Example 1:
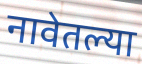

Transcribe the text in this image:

नावेतल्या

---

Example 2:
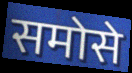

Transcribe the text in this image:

समोसे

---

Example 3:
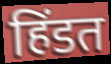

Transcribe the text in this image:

हिंडत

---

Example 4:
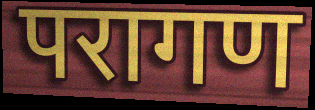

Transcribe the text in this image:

परागण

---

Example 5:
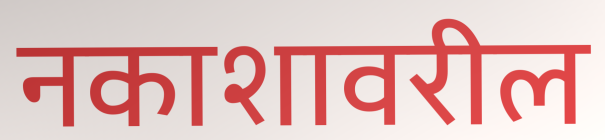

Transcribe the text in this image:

नकाशावरील